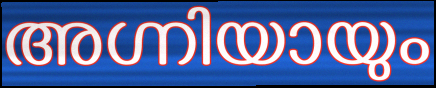
അഗ്നിയായും